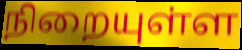
நிறையுள்ள